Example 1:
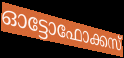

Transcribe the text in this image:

ഓട്ടോഫോക്കസ്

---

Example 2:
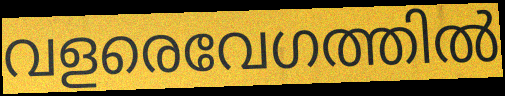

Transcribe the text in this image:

വളരെവേഗത്തിൽ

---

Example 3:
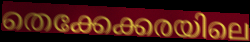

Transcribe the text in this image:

തെക്കേക്കരയിലെ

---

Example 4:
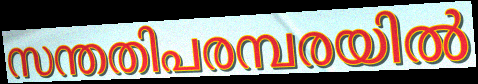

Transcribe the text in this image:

സന്തതിപരമ്പരയിൽ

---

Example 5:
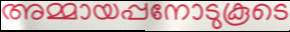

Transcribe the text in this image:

അമ്മായപ്പനോടുകൂടെ